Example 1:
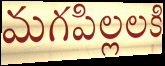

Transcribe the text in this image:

మగపిల్లలకి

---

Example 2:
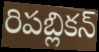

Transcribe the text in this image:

రిపబ్లికన్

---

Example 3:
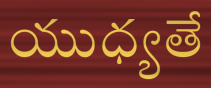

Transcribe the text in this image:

యుధ్యతే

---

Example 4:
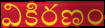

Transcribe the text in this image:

వికిరణం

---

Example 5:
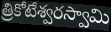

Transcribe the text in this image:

త్రికోటేశ్వరస్వామి